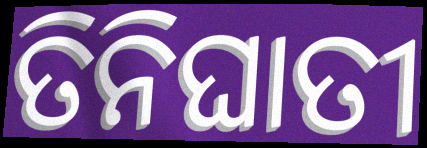
ତିନିଘାତୀ